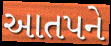
આતપને